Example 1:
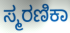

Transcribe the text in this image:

ಸ್ಮರಣಿಕಾ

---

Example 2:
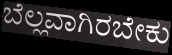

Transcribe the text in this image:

ಬೆಲ್ಲವಾಗಿರಬೇಕು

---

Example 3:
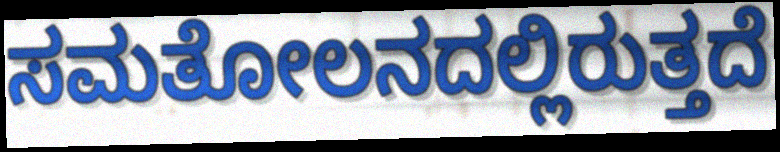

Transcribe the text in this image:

ಸಮತೋಲನದಲ್ಲಿರುತ್ತದೆ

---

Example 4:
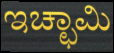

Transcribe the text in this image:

ಇಚ್ಛಾಮಿ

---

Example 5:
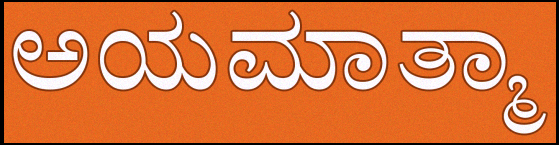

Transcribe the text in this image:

ಅಯಮಾತ್ಮಾ